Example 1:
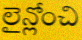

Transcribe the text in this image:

లైన్లోంచి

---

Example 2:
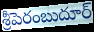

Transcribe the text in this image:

శ్రీపెరంబుదూర్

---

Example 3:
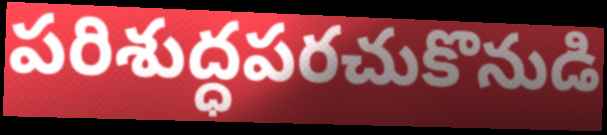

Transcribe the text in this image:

పరిశుద్ధపరచుకొనుడి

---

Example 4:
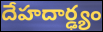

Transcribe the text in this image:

దేహదార్ఢ్యం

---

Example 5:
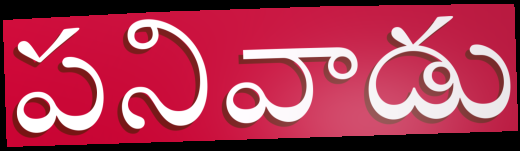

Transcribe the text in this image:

పనివాడు